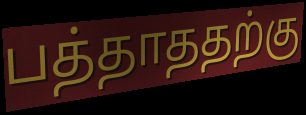
பத்தாததற்கு